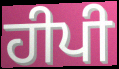
ਹੀਪੀ